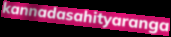
kannadasahityaranga